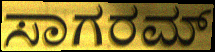
ಸಾಗರಮ್